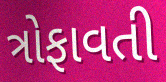
ત્રોફાવતી